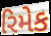
રિમેક